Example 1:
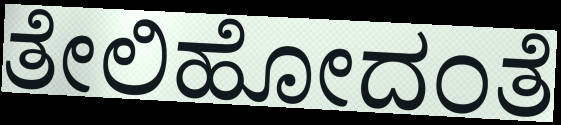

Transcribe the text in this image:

ತೇಲಿಹೋದಂತೆ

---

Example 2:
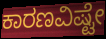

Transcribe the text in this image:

ಕಾರಣವಿಷ್ಟೇ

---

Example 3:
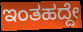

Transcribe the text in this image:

ಇಂತಹದ್ದೇ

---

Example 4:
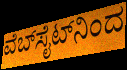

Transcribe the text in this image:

ವೆಬ್‍ಸೈಟ್‍ನಿಂದ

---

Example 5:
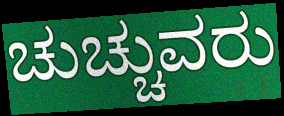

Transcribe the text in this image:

ಚುಚ್ಚುವರು